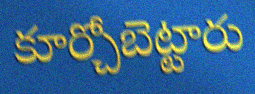
కూర్చోబెట్టారు